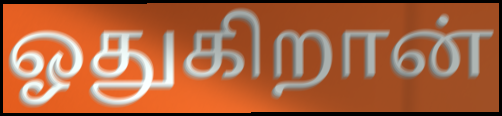
ஓதுகிறான்